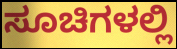
ಸೂಚಿಗಳಲ್ಲಿ